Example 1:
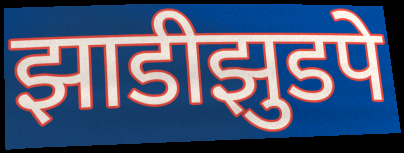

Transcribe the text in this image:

झाडीझुडपे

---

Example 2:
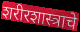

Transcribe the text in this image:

शरीरशास्त्राचे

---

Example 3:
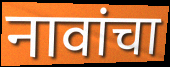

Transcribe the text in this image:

नावांचा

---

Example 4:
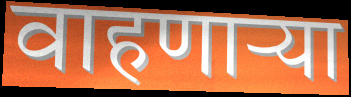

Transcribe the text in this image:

वाहणाऱ्या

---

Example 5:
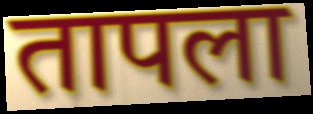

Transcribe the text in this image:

तापला